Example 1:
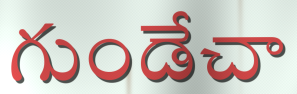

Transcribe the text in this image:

గుండేచా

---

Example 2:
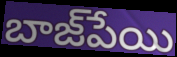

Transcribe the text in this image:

బాజ్‌పేయి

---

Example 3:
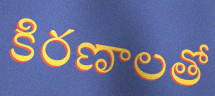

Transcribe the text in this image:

కిరణాలతో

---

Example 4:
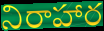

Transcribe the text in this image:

నిరాహార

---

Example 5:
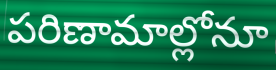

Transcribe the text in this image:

పరిణామాల్లోనూ